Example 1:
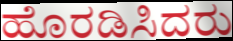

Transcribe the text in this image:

ಹೊರಡಿಸಿದರು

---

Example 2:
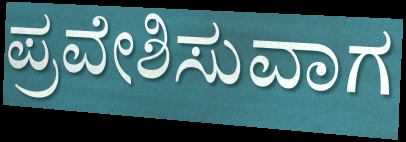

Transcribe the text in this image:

ಪ್ರವೇಶಿಸುವಾಗ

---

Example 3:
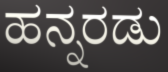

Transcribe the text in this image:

ಹನ್ನರಡು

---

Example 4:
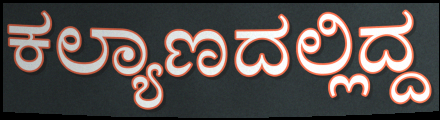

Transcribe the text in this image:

ಕಲ್ಯಾಣದಲ್ಲಿದ್ದ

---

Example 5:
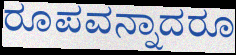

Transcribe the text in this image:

ರೂಪವನ್ನಾದರೂ